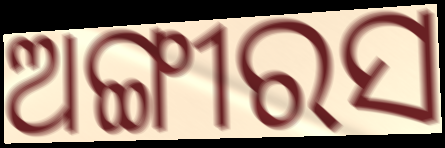
ଅଙ୍ଗୀରସ